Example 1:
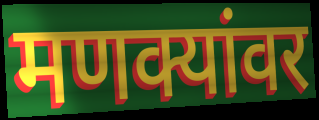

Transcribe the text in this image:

मणक्यांवर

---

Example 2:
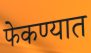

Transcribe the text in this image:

फेकण्यात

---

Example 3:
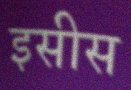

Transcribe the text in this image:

इसीस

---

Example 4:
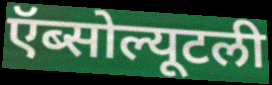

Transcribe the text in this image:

ऍब्सोल्यूटली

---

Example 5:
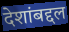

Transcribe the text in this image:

देशांबद्दल